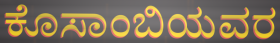
ಕೊಸಾಂಬಿಯವರ